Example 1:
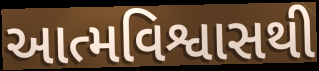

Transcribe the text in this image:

આત્મવિશ્વાસથી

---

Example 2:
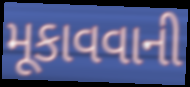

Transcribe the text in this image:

મૂકાવવાની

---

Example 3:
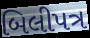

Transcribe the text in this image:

બિલીપત્ર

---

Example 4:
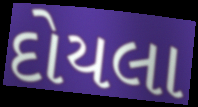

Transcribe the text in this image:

દોયલા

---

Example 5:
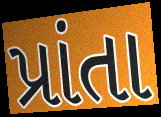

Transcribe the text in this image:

પ્રાંતા